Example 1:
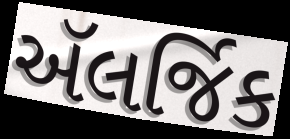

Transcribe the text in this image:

ઍલર્જિક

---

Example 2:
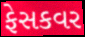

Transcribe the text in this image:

ફેસકવર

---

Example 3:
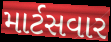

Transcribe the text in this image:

માર્ટસવાર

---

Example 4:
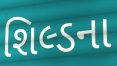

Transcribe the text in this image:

શિલ્ડના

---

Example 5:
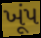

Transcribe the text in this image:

ખૂંપ